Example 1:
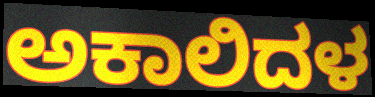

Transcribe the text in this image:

ಅಕಾಲಿದಳ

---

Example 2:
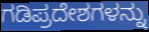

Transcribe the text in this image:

ಗಡಿಪ್ರದೇಶಗಳನ್ನು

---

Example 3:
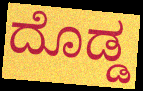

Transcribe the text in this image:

ದೊಡ್ಡ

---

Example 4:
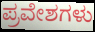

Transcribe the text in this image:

ಪ್ರವೇಶಗಳು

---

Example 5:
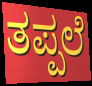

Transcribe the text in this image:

ತಪ್ಪಲೆ